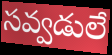
సవ్వడులే